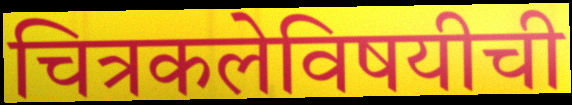
चित्रकलेविषयीची